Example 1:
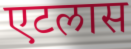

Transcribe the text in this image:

एटलास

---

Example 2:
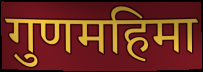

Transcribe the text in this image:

गुणमहिमा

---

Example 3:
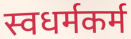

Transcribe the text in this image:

स्वधर्मकर्म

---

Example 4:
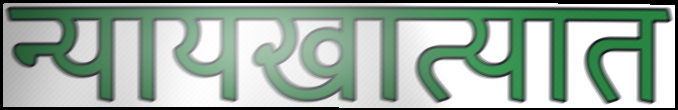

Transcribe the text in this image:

न्यायखात्यात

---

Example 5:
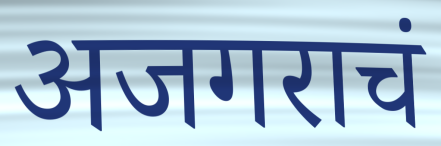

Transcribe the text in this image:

अजगराचं